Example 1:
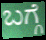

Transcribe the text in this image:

ಬಗ್ಗೆ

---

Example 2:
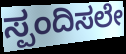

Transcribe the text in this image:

ಸ್ಪಂದಿಸಲೇ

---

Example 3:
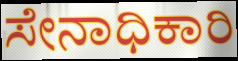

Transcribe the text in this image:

ಸೇನಾಧಿಕಾರಿ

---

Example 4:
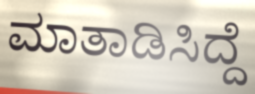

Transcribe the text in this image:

ಮಾತಾಡಿಸಿದ್ದೆ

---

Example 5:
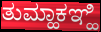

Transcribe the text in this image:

ತುಮ್ಹಾಕಞ್ಹಿ